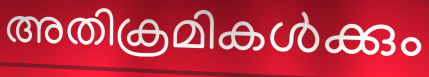
അതിക്രമികൾക്കും